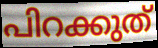
പിറക്കുത്